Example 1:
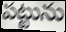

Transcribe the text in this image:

పట్టును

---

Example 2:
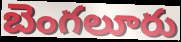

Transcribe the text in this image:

బెంగలూరు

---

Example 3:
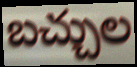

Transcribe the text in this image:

బచ్చుల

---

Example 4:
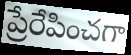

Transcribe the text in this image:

ప్రేరేపించగా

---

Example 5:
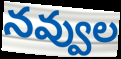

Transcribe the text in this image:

నవ్వుల